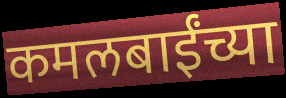
कमलबाईंच्या